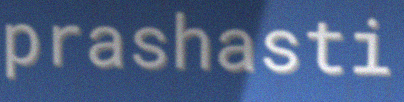
prashasti